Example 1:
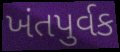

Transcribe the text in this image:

ખંતપુર્વક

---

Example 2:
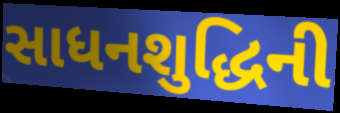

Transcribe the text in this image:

સાધનશુદ્ધિની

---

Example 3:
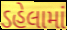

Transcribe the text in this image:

ડહેલામાં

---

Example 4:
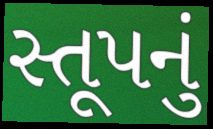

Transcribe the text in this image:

સ્તૂપનું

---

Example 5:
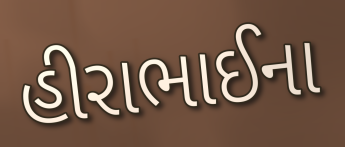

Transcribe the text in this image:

હીરાભાઈના